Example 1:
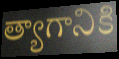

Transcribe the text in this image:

త్యాగానికి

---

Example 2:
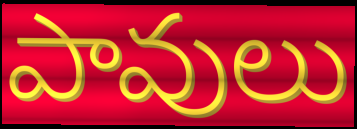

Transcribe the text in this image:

పావులు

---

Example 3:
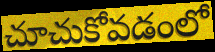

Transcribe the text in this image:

చూచుకోవడంలో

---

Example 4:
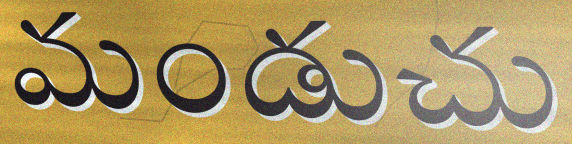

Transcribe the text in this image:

మండుచు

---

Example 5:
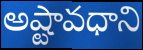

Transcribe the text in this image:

అష్టావధాని